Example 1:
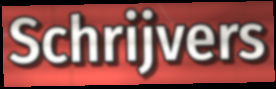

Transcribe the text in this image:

Schrijvers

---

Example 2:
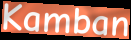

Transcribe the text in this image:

Kamban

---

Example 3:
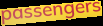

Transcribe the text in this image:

passengers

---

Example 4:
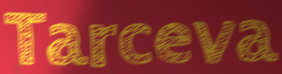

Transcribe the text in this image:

Tarceva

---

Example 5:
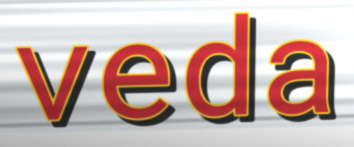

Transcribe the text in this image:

veda